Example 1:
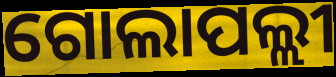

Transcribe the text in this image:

ଗୋଲାପଲ୍ଲୀ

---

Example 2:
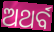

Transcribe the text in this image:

ଅଥର୍ବ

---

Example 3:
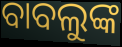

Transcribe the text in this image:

ବାବଲୁଙ୍କ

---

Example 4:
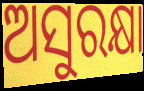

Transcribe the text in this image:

ଅସୁରକ୍ଷା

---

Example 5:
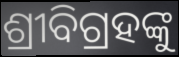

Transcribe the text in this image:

ଶ୍ରୀବିଗ୍ରହଙ୍କୁ